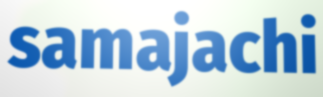
samajachi